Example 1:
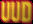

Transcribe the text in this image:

UUD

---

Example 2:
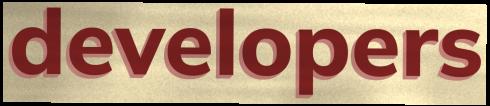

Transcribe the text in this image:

developers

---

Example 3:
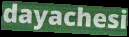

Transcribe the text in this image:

dayachesi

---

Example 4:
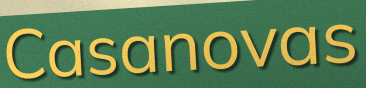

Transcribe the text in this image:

Casanovas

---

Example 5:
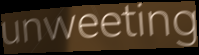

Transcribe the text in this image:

unweeting